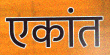
एकांत